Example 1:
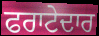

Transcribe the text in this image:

ਫਰਾਟੇਦਾਰ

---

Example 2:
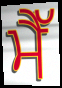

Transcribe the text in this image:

ਮੈੱ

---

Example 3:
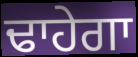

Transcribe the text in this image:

ਢਾਹੇਗਾ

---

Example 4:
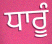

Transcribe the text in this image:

ਧਾਰੂੰ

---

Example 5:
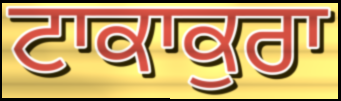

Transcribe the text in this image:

ਟਾਕਾਕੁਰਾ